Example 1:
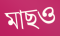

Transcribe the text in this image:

মাছও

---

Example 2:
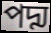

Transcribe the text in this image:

পদ্ম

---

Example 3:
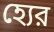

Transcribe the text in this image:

হ্যের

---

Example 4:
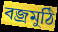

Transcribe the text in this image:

বজ্রমুঠি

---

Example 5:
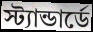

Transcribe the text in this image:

স্ট্যান্ডার্ডে